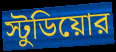
স্টুডিয়োর